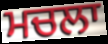
ਮਚਲਾ